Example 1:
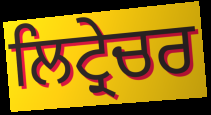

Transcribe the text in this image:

ਲਿਟ੍ਰੇਚਰ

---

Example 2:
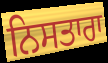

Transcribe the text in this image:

ਨਿਸਤਾਰਾ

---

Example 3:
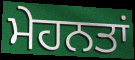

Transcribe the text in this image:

ਮੇਹਨਤਾਂ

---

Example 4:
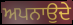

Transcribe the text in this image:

ਅਪਨਾਉਦੇ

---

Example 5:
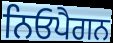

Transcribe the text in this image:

ਨਿਓਪੈਗਨ